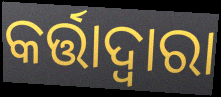
କର୍ତ୍ତାଦ୍ଵାରା